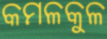
କମଳକୁଳ